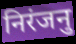
निरंजनु